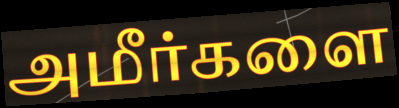
அமீர்களை